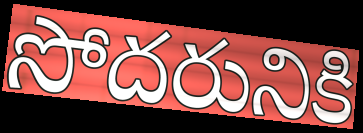
సోదరునికి